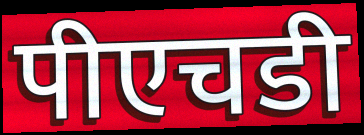
पीएचडी